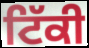
ਟਿੱਕੀ